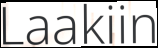
Laakiin